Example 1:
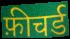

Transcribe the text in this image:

फ़ीचर्ड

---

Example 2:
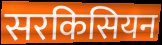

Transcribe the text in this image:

सरकिसियन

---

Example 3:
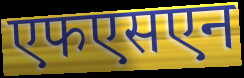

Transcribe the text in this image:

एफएसएन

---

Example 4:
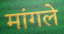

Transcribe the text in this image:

मांगले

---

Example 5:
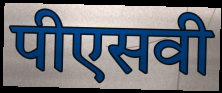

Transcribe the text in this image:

पीएसवी